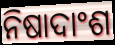
ନିଷାଦାଂଶ